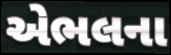
એભલના